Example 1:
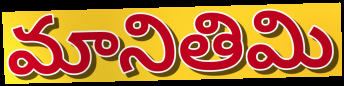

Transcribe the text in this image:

మానితిమి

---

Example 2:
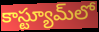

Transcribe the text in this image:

కాస్ట్యూమ్‌లో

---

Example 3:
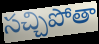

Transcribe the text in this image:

సచ్చిపోతా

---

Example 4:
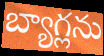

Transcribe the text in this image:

బ్యాగ్లను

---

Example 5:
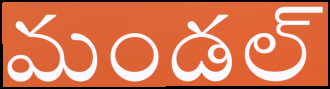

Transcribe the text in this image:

మండల్